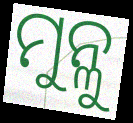
ମୁନ୍ଳୁ